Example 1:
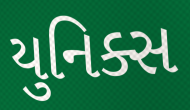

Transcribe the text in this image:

યુનિક્સ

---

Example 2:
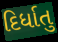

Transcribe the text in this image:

દિર્ધાતુ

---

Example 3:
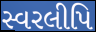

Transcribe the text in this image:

સ્વરલીપિ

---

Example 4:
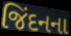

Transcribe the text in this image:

જિંદનના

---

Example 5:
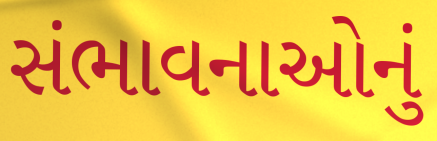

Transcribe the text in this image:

સંભાવનાઓનું